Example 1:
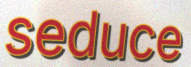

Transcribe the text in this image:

seduce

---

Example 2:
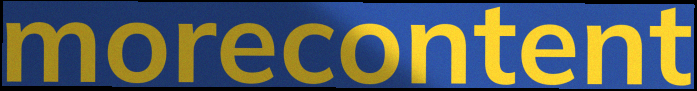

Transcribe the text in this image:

morecontent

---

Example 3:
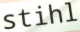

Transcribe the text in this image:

stihl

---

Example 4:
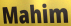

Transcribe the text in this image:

Mahim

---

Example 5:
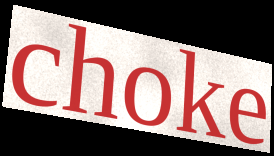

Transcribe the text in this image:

choke